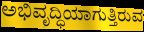
ಅಭಿವೃದ್ಧಿಯಾಗುತ್ತಿರುವ